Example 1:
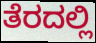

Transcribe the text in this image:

ತೆರದಲ್ಲಿ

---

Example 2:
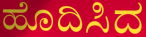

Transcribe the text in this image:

ಹೊದಿಸಿದ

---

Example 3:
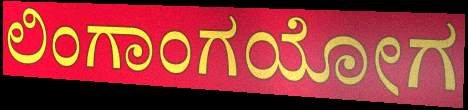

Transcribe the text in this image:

ಲಿಂಗಾಂಗಯೋಗ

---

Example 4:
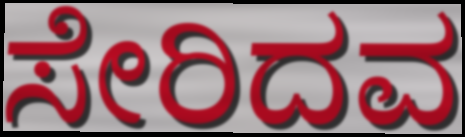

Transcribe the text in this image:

ಸೇರಿದವ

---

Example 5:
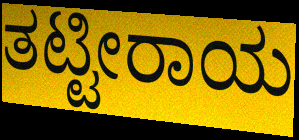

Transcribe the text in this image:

ತಟ್ಟೀರಾಯ